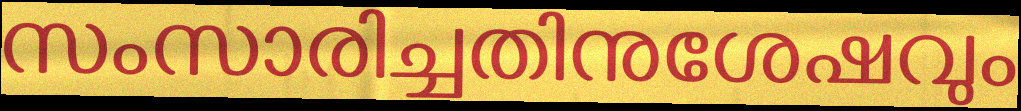
സംസാരിച്ചതിനുശേഷവും